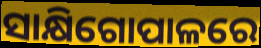
ସାକ୍ଷିଗୋପାଳରେ